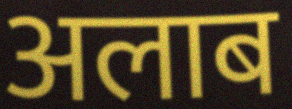
अलाब